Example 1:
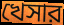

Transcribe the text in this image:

খেসার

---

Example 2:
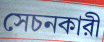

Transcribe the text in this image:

সেচনকারী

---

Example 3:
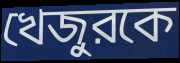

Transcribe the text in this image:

খেজুরকে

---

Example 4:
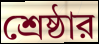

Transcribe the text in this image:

শ্রেষ্ঠার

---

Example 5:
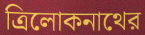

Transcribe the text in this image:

ত্রিলোকনাথের